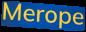
Merope